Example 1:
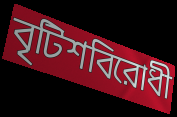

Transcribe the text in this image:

বৃটিশবিরোধী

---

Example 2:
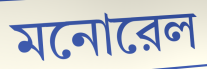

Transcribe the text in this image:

মনোরেল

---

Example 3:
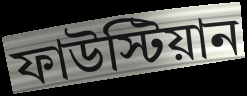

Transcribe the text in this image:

ফাউস্টিয়ান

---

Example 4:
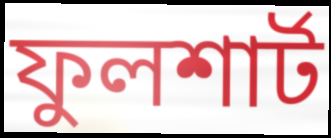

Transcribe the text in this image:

ফুলশার্ট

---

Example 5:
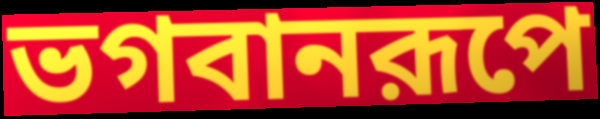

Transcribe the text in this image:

ভগবানরূপে